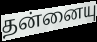
தன்னையு